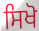
ਸਿਖੋ